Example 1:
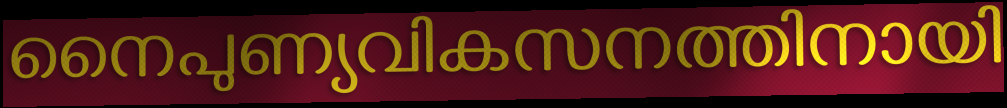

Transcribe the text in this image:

നൈപുണ്യവികസനത്തിനായി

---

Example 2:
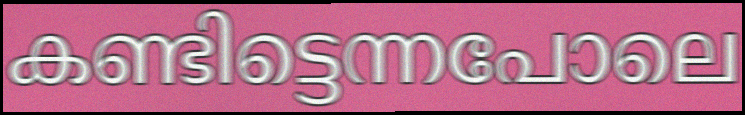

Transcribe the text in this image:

കണ്ടിട്ടെന്നപോലെ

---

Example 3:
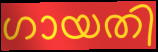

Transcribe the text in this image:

ഗായതി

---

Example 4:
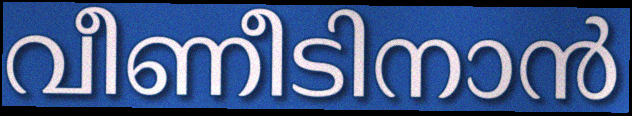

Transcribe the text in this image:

വീണീടിനാൻ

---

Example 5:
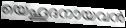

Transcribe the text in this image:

യെഹൂദനായവൻ